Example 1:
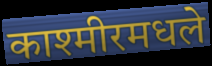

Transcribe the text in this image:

काश्‍मीरमधले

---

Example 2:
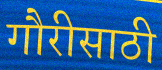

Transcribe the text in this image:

गौरीसाठी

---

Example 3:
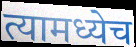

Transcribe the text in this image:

त्यामध्येच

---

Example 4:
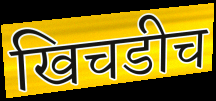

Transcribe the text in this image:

खिचडीच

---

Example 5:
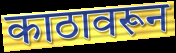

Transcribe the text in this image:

काठावरून